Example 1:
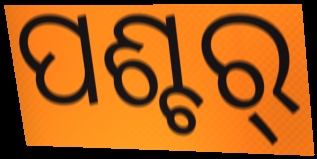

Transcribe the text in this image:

ପଶ୍ଚର୍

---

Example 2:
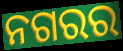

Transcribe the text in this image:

ନଗରର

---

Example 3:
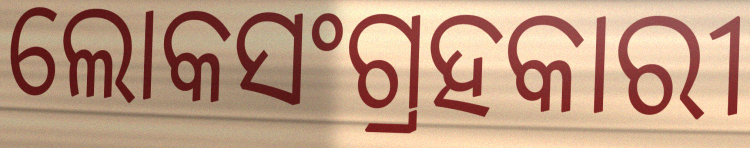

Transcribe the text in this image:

ଲୋକସଂଗ୍ରହକାରୀ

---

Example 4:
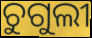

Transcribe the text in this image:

ଚୁଗୁଲୀ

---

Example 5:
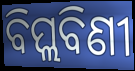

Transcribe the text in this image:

ବିପ୍ଲବିଣୀ